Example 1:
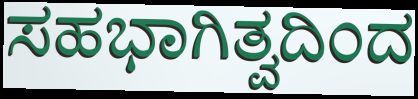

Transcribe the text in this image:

ಸಹಭಾಗಿತ್ವದಿಂದ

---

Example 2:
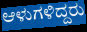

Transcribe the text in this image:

ಆಳುಗಳಿದ್ದರು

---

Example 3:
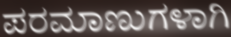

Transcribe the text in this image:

ಪರಮಾಣುಗಳಾಗಿ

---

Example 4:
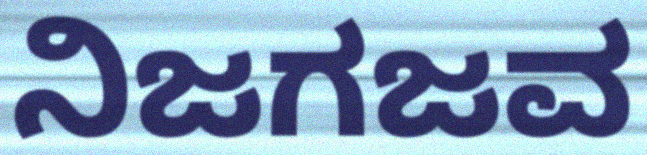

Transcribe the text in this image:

ನಿಜಗಜವ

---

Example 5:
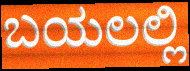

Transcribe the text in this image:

ಬಯಲಲ್ಲಿ